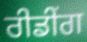
ਰੀਡੀਂਗ